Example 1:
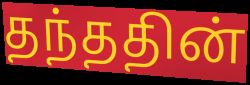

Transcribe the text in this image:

தந்ததின்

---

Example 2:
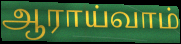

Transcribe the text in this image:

ஆராய்வாம்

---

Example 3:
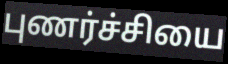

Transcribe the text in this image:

புணர்ச்சியை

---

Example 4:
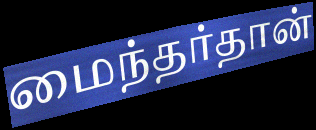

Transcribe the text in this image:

மைந்தர்தான்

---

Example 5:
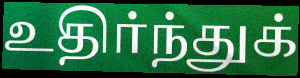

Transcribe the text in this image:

உதிர்ந்துக்